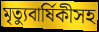
মৃত্যুবার্ষিকীসহ